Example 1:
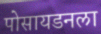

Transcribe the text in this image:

पोसायडनला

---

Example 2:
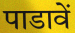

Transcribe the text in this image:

पाडावें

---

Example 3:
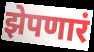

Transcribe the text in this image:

झेपणारं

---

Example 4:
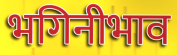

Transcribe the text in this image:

भगिनीभाव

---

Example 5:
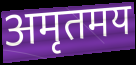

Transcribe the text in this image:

अमृतमय